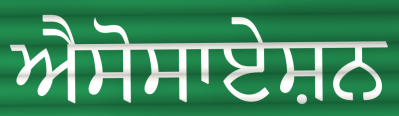
ਐਸੋਸਾਏਸ਼ਨ